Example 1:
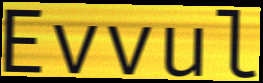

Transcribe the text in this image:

Evvul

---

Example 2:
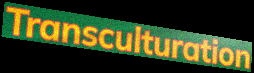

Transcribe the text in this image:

Transculturation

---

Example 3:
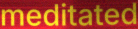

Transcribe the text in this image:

meditated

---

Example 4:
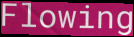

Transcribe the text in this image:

Flowing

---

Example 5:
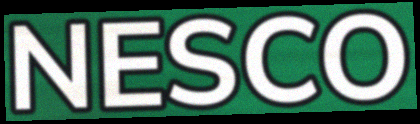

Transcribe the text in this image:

NESCO